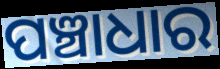
ପଞ୍ଚାଧାର